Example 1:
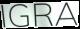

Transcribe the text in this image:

IGRA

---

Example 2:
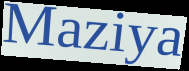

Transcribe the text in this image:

Maziya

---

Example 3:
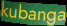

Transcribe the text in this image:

kubanga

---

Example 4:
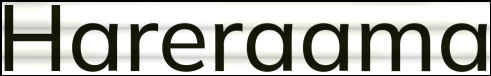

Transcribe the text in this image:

Hareraama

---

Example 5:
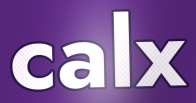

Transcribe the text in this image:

calx